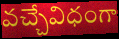
వచ్చేవిధంగా